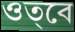
ওত্‌বে